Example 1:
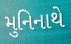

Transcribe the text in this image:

મુનિનાથે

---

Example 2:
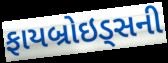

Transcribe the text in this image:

ફાયબ્રોઇડ્સની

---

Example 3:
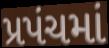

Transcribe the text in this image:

પ્રપંચમાં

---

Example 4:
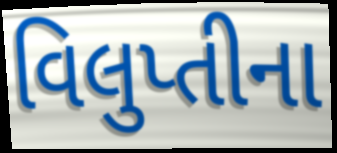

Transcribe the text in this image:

વિલુપ્તીના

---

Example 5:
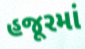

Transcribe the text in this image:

હજૂરમાં